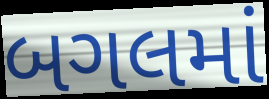
બગલમાં